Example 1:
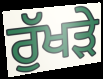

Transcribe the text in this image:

ਰੁੱਖੜੇ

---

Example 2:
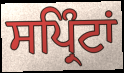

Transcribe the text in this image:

ਸਪ੍ਰਿੰਟਾਂ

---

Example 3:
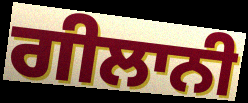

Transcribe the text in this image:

ਗੀਲਾਨੀ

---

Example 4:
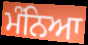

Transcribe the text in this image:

ਮੰਂਨਿਆ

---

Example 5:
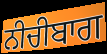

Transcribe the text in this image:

ਨੀਚੀਬਾਗ